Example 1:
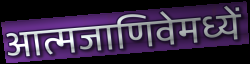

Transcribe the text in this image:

आत्मजाणिवेमध्यें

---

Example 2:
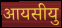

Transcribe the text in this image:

आयसीयु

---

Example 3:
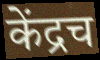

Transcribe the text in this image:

केंद्रच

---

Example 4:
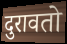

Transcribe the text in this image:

दुरावतो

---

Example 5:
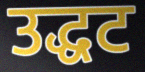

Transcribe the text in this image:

उद्धट